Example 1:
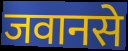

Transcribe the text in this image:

जवानसे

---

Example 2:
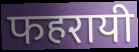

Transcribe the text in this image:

फहरायी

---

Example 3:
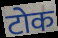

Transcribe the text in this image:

टोक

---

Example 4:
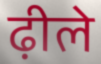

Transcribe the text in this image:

ढ़ीले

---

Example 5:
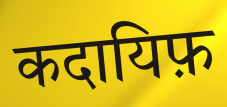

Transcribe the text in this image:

कदायिफ़